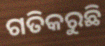
ଗତିକରୁଛି